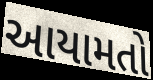
આયામતો